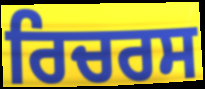
ਰਿਚਰਸ